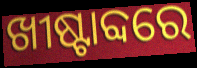
ଖୀଷ୍ଟାବ୍ଦରେ